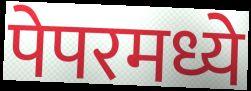
पेपरमध्ये